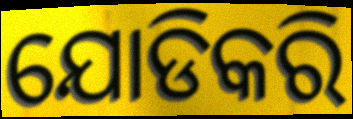
ଯୋଡିକରି